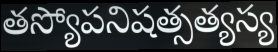
తస్యోపనిషత్సత్యస్య